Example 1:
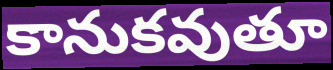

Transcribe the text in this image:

కానుకవుతూ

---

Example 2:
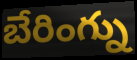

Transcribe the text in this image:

బేరింగ్ను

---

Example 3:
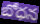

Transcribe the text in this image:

బోధన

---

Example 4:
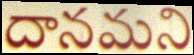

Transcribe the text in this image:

దానమని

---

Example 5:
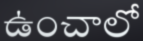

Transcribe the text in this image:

ఉంచాలో